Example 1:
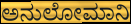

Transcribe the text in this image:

ಅನುಲೋಮಾನಿ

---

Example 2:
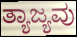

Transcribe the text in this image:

ತ್ಯಾಜ್ಯವು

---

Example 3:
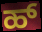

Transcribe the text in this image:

ಹ್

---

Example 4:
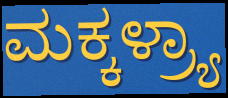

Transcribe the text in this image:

ಮಕ್ಕಳ್ರ್ಯಾ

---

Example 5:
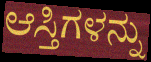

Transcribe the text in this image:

ಆಸ್ತಿಗಳನ್ನು